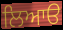
ਲਿਆੳ